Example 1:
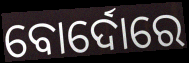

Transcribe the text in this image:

ବୋର୍ଦୋରେ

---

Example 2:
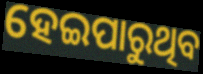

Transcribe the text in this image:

ହେଇପାରୁଥିବ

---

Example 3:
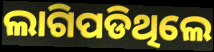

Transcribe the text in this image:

ଲାଗିପଡିଥିଲେ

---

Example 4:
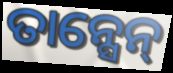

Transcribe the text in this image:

ତାନ୍ସେନ୍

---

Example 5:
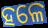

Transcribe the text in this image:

ହଳେ